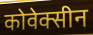
कोवेक्सीन